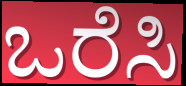
ಒರೆಸಿ